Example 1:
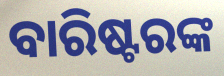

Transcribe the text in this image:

ବାରିଷ୍ଟରଙ୍କ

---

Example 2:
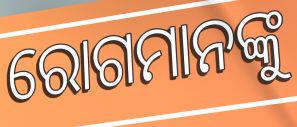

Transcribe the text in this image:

ରୋଗମାନଙ୍କୁ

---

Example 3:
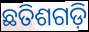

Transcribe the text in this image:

ଛତିଶଗଡ଼ି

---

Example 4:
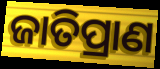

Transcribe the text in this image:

ଜାତିପ୍ରାଣ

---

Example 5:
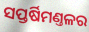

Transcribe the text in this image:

ସପ୍ତର୍ଷିମଣ୍ତଳର